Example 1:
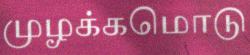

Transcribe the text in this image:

முழக்கமொடு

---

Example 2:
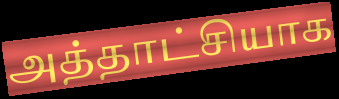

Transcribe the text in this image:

அத்தாட்சியாக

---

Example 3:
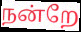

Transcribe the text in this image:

நன்றே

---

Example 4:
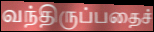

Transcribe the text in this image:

வந்திருப்பதைச்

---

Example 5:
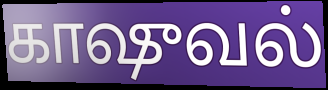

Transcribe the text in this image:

காஷுவல்